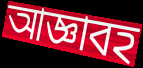
আজ্ঞাবহ